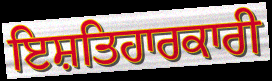
ਇਸ਼ਤਿਹਾਰਕਾਰੀ